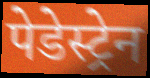
पेडेस्ट्रेन